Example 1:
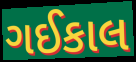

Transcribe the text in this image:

ગઈકાલ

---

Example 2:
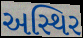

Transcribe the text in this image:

અસ્થિર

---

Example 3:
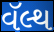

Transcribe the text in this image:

વૅલ્થ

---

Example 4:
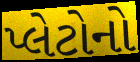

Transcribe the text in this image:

પ્લેટોનો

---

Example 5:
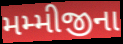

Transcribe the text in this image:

મમ્મીજીના